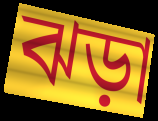
ঝড়া